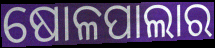
ଷୋଳପାଲାର